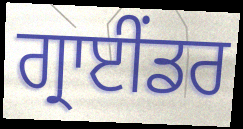
ਗ੍ਰਾਈਂਡਰ